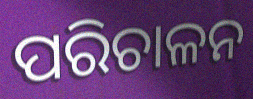
ପରିଚାଳନ